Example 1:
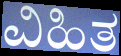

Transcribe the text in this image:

ವಿಹಿತ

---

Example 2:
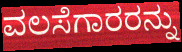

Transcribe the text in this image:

ವಲಸೆಗಾರರನ್ನು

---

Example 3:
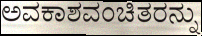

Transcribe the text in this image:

ಅವಕಾಶವಂಚಿತರನ್ನು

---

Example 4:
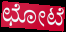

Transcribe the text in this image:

ಛೋಟೆ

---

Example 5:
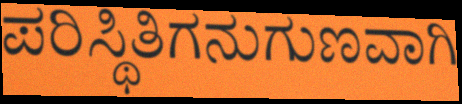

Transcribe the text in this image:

ಪರಿಸ್ಥಿತಿಗನುಗುಣವಾಗಿ